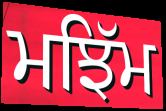
ਮਝਿੱਮ